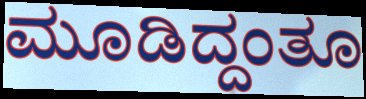
ಮೂಡಿದ್ದಂತೂ